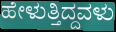
ಹೇಳುತ್ತಿದ್ದವಳು